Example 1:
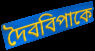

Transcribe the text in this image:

দৈববিপাকে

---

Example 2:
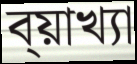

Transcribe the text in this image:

ব্য়াখ্যা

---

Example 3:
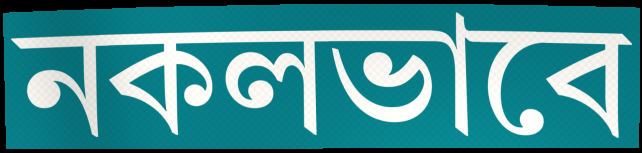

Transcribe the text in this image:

নকলভাবে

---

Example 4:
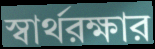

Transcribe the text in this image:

স্বার্থরক্ষার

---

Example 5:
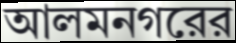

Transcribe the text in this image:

আলমনগরের